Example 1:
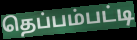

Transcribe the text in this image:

தெப்பம்பட்டி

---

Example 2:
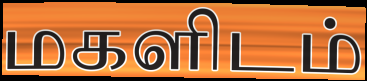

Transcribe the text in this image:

மகளிடம்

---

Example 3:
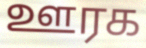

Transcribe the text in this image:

ஊரக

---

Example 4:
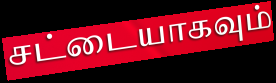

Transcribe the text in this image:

சட்டையாகவும்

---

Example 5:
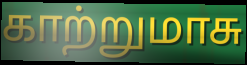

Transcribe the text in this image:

காற்றுமாசு